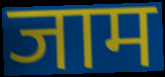
जाम